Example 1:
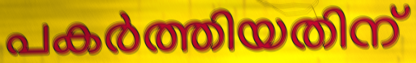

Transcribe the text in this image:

പകർത്തിയതിന്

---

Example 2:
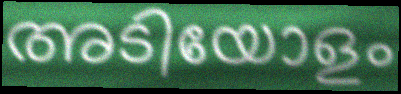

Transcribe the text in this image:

അടിയോളം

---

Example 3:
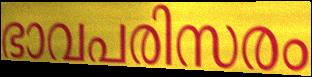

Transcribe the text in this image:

ഭാവപരിസരം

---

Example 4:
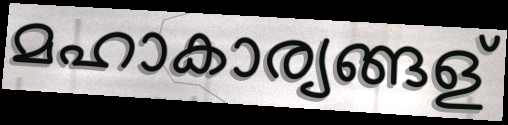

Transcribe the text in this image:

മഹാകാര്യങ്ങള്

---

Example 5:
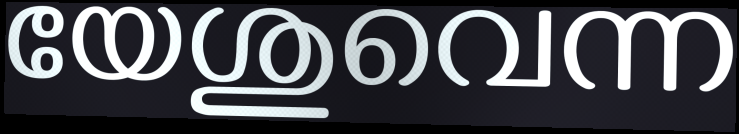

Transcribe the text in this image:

യേശുവെന്ന